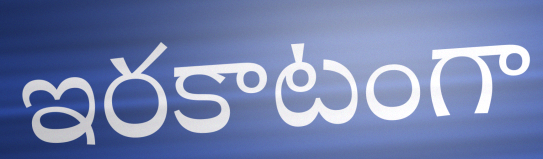
ఇరకాటంగా